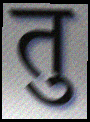
तु